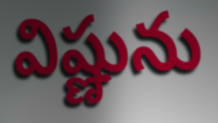
విష్ణును